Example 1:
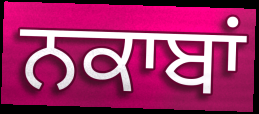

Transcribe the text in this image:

ਨਕਾਬਾਂ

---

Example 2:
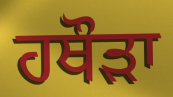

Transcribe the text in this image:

ਹਥੌੜਾ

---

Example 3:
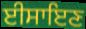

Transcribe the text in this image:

ਈਸਾਇਣ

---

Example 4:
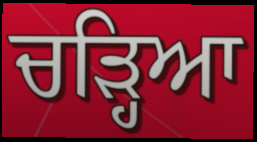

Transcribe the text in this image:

ਚੜ੍ਹਿਆ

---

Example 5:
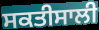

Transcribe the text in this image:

ਸਕਤੀਸਾਲੀ